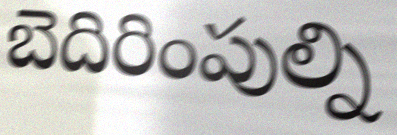
బెదిరింపుల్ని